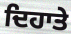
ਦਿਹਾਤੇ